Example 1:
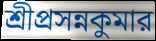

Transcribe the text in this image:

শ্রীপ্রসন্নকুমার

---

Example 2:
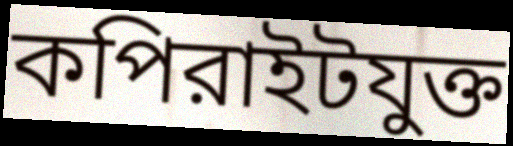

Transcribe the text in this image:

কপিরাইটযুক্ত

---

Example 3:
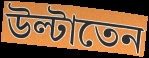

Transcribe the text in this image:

উল্টাতেন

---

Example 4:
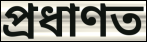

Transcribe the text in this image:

প্রধাণত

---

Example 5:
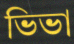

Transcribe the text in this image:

ভিভা